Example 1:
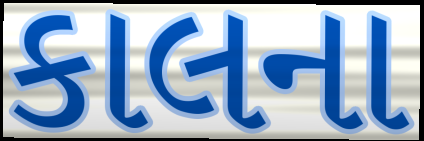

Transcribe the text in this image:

કાલના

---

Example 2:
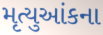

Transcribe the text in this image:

મૃત્યુઆંકના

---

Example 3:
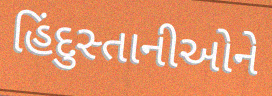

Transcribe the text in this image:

હિંદુસ્તાનીઓને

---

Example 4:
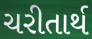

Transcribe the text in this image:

ચરીતાર્થ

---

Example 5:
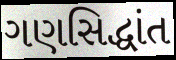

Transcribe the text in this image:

ગણસિદ્ધાંત